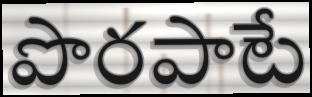
పొరపాటే